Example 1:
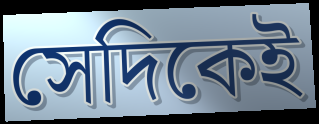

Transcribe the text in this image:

সেদিকেই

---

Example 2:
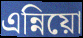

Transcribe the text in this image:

এন্নিয়ো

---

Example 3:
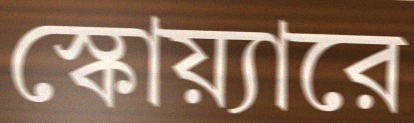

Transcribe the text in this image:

স্কোয়্যারে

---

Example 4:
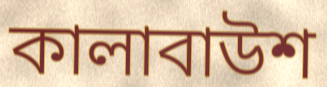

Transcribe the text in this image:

কালাবাউশ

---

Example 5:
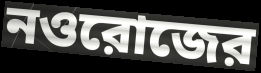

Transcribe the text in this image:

নওরোজের